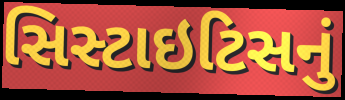
સિસ્ટાઇટિસનું